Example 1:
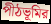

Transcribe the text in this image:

পীঠভূমির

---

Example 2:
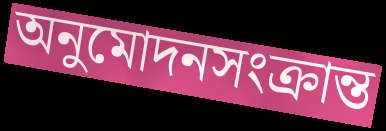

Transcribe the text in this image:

অনুমোদনসংক্রান্ত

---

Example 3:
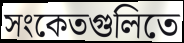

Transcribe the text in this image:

সংকেতগুলিতে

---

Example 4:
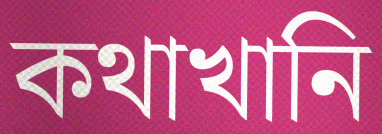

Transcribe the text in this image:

কথাখানি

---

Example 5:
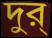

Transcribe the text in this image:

দুর্